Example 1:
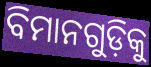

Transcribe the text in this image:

ବିମାନଗୁଡ଼ିକୁ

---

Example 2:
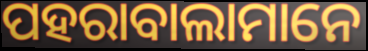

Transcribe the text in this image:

ପହରାବାଲାମାନେ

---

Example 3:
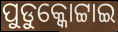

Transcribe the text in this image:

ପୁଡୁକ୍କୋଟ୍ଟାଇ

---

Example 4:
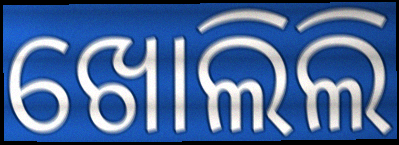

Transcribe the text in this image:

ଖୋଲିଲି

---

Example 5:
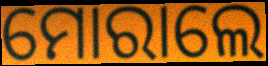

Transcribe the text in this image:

ମୋରାଲେ